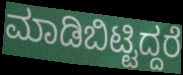
ಮಾಡಿಬಿಟ್ಟಿದ್ದರೆ